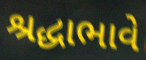
શ્રદ્ધાભાવે